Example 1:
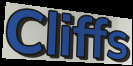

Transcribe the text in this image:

Cliffs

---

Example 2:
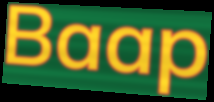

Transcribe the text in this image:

Baap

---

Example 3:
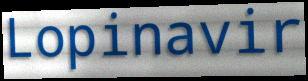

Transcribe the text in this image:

Lopinavir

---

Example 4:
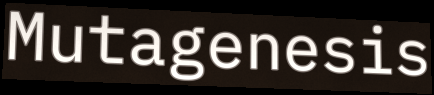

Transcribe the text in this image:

Mutagenesis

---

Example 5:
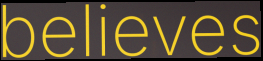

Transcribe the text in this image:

believes